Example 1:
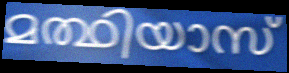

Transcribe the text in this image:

മത്ഥിയാസ്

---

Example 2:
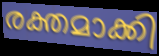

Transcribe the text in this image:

രക്തമാക്കി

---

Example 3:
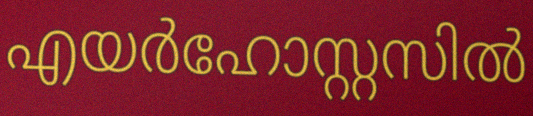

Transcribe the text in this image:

എയർഹോസ്റ്റസിൽ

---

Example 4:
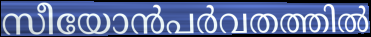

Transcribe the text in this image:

സീയോൻപർവതത്തിൽ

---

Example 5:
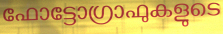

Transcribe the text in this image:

ഫോട്ടോഗ്രാഫുകളുടെ